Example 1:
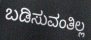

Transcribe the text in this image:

ಬಡಿಸುವಂತಿಲ್ಲ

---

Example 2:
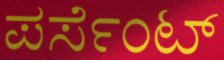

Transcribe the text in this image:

ಪರ್ಸೆಂಟ್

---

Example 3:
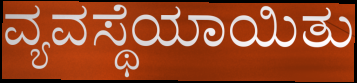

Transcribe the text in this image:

ವ್ಯವಸ್ಥೆಯಾಯಿತು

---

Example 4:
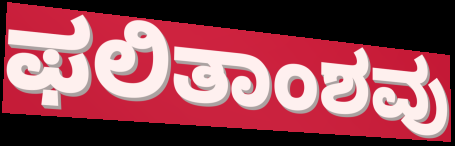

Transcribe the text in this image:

ಫಲಿತಾಂಶವು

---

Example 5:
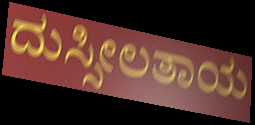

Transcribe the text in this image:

ದುಸ್ಸೀಲತಾಯ